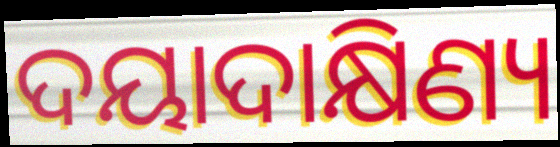
ଦୟାଦାକ୍ଷିଣ୍ୟ